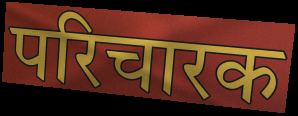
परिचारक